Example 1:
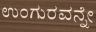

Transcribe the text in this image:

ಉಂಗುರವನ್ನೇ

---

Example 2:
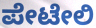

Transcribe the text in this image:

ಪೇಟೇಲಿ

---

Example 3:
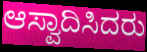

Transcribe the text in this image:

ಆಸ್ವಾದಿಸಿದರು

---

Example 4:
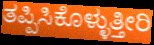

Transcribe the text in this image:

ತಪ್ಪಿಸಿಕೊಳ್ಳುತ್ತೀರಿ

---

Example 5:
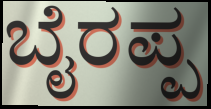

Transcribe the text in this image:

ಬೈರಪ್ಪ